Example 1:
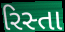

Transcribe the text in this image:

રિસ્તા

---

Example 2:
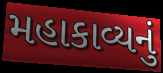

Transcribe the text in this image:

મહાકાવ્યનું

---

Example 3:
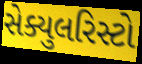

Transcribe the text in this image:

સેક્યુલરિસ્ટો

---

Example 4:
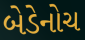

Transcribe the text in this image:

બેડેનોચ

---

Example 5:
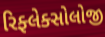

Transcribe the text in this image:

રિફ્લેક્સોલોજી